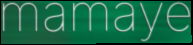
mamaye